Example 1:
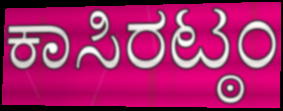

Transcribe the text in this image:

ಕಾಸಿರಟ್ಠಂ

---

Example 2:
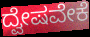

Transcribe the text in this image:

ದ್ವೇಷವೇಕೆ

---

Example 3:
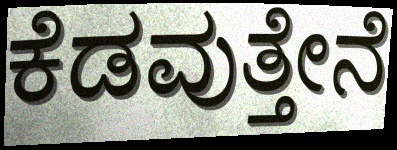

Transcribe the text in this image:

ಕೆಡವುತ್ತೇನೆ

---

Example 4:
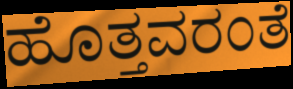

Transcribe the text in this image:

ಹೊತ್ತವರಂತೆ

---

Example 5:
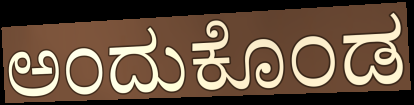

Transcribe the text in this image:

ಅಂದುಕೊಂಡ